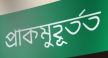
প্ৰাকমুহূৰ্তত